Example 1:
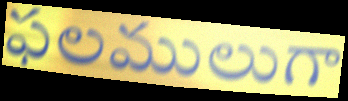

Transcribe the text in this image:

ఫలములుగా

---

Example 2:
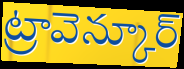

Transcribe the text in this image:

ట్రావెన్కూర్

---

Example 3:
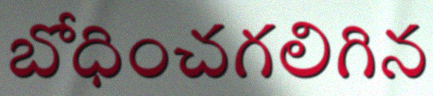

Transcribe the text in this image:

బోధించగలిగిన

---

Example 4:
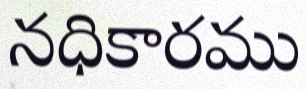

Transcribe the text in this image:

నధికారము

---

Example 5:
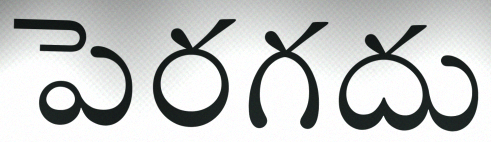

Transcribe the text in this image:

పెరగదు